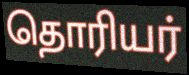
தொரியர்